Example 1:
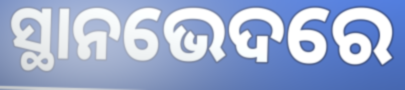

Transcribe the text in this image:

ସ୍ଥାନଭେଦରେ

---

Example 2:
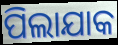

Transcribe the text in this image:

ପିଲାଯାକ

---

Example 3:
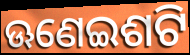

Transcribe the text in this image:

ଊଣେଇଶଟି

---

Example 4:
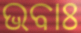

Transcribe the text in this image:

ଭବାଃ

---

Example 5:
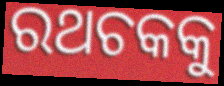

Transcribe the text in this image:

ରଥଚକକୁ